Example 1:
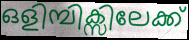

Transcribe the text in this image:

ഒളിമ്പിക്സിലേക്ക്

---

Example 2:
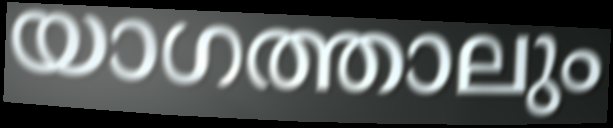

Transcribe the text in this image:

യാഗത്താലും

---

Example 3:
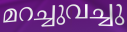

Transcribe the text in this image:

മറച്ചുവച്ചു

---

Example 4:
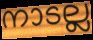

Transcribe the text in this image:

നാടല്ല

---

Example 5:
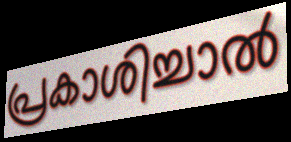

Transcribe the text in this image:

പ്രകാശിച്ചാൽ